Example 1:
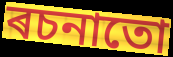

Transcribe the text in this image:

ৰচনাতো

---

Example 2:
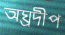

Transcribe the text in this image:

অঘ্ৰদীপ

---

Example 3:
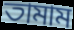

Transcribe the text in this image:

তামাম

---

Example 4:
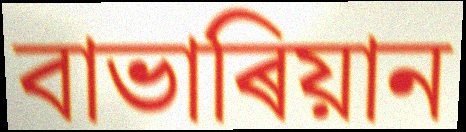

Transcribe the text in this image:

বাভাৰিয়ান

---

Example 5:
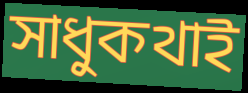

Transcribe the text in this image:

সাধুকথাই